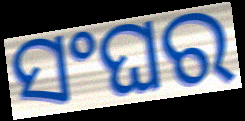
ସଂଘର